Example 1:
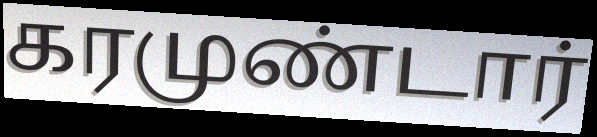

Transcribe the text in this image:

கரமுண்டார்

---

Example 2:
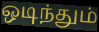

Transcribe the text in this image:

ஒடிந்தும்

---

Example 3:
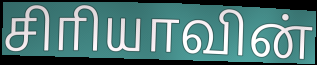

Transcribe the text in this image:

சிரியாவின்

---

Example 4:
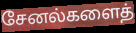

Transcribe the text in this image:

சேனல்களைத்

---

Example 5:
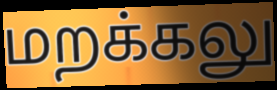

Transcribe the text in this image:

மறக்கலு